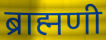
ब्राह्मणी